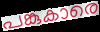
പങ്കുകാരെ